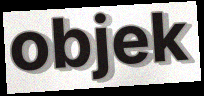
objek